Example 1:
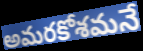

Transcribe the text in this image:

అమరకోశమనే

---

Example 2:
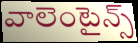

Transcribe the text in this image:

వాలెంటైన్స్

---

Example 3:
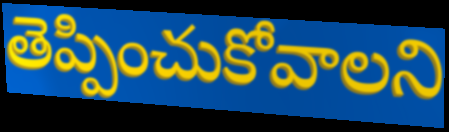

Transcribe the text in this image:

తెప్పించుకోవాలని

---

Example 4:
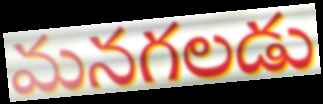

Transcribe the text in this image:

మనగలడు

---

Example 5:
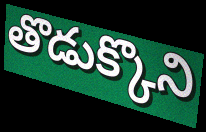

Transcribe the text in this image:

తొడుక్కొని